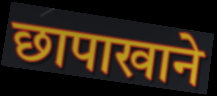
छापाखाने